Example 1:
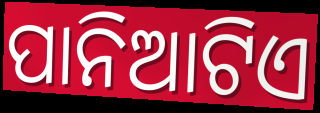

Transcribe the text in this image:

ପାନିଆଟିଏ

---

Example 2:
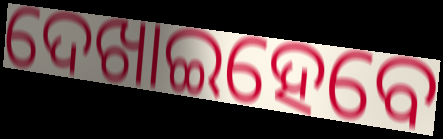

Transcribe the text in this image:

ଦେଖାଇହେବେ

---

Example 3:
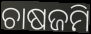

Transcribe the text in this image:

ଚାଷଜମି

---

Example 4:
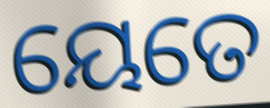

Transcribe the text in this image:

ୟେତେ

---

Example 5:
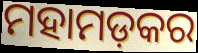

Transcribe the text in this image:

ମହାମଡ଼କର